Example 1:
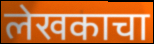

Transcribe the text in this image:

लेखकाचा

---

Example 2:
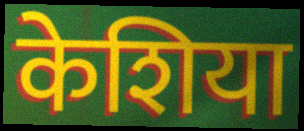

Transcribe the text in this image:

केशिया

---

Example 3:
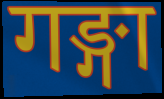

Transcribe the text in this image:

गङ्गा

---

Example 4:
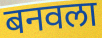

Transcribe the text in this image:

बनवला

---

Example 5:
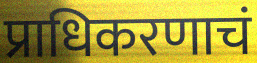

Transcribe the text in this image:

प्राधिकरणाचं